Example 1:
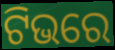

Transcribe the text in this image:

ଟିଭରେ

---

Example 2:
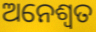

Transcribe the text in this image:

ଅନେଶ୍ଵତ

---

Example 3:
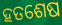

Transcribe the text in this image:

ହତଶେଷ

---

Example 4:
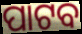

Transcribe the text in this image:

ପାଟବ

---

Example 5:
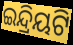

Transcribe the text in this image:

ଇନ୍ଦ୍ରିୟଟି